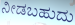
ನೀಡಬಹುದು